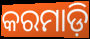
କରମାଡ଼ି